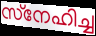
സ്‌നേഹിച്ച